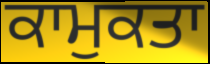
ਕਾਮੁਕਤਾ